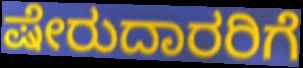
ಷೇರುದಾರರಿಗೆ